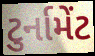
ટુર્નામેંટ